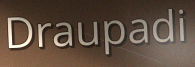
Draupadi